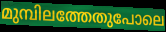
മുമ്പിലത്തേതുപോലെ